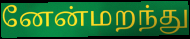
னேன்மறந்து